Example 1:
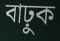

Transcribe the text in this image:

বাঢ়ুক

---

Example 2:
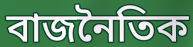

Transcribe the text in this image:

বাজনৈতিক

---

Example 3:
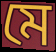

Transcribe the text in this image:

মে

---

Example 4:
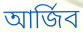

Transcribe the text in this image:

আৰ্জিব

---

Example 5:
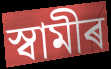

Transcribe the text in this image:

স্বামীৰ